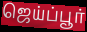
ஜெய்ப்பூர்